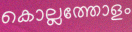
കൊല്ലത്തോളം